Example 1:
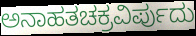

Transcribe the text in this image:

ಅನಾಹತಚಕ್ರವಿರ್ಪುದು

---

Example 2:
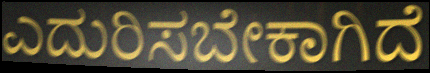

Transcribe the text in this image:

ಎದುರಿಸಬೇಕಾಗಿದೆ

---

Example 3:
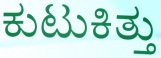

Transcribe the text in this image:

ಕುಟುಕಿತ್ತು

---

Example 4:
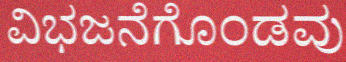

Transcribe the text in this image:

ವಿಭಜನೆಗೊಂಡವು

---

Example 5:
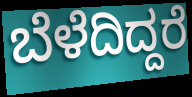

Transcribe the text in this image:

ಬೆಳೆದಿದ್ದರೆ